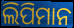
ଲିପିମାନ